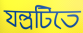
যন্ত্রটিতে